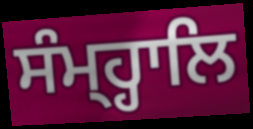
ਸੰਮ੍ਹ੍ਹਾਲਿ